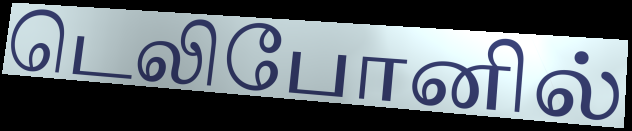
டெலிபோனில்